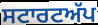
ਸਟਾਰਟਅੱਪ